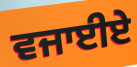
ਵਜਾਈਏ